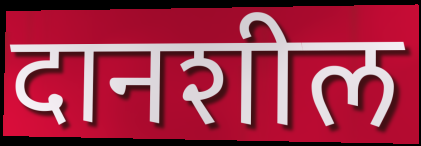
दानशील